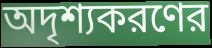
অদৃশ্যকরণের